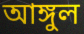
আঙ্গুল